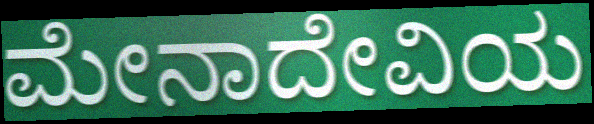
ಮೇನಾದೇವಿಯ